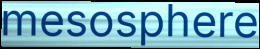
mesosphere